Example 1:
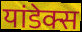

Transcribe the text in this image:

यांडेक्स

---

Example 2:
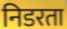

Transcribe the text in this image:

निडरता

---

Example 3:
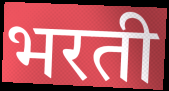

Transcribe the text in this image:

भरती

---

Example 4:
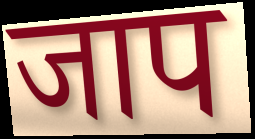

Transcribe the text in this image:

जाप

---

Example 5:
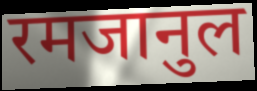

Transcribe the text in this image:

रमजानुल